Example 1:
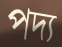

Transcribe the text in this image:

পদ্য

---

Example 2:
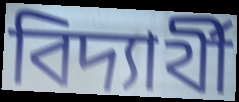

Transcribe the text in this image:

বিদ্যার্থী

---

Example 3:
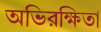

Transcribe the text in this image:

অভিরক্ষিতা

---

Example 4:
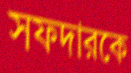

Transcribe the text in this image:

সফদারকে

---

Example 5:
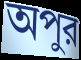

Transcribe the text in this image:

অপুর